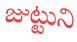
జుట్టుని